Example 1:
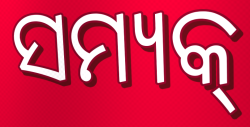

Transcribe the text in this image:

ସମ୍ୟକ୍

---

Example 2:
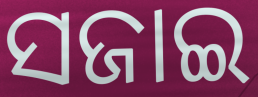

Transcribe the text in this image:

ସଜାଇ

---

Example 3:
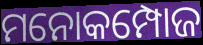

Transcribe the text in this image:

ମନୋକମ୍ପୋଜ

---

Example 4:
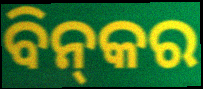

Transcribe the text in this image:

ବିନ୍‌କର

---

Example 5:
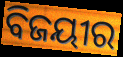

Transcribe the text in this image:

ବିଜୟୀର